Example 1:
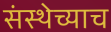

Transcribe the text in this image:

संस्थेच्याच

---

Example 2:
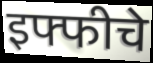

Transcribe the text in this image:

इफ्फीचे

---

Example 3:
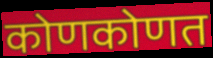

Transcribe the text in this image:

कोणकोणत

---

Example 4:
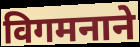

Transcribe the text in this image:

विगमनाने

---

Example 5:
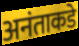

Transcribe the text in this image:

अनंताकडे